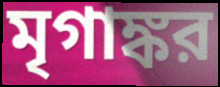
মৃগাঙ্কর